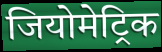
जियोमेट्रिक